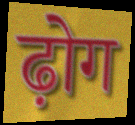
ढ़ोग